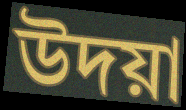
উদয়া